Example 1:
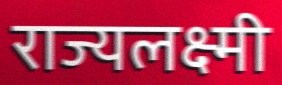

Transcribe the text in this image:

राज्यलक्ष्मी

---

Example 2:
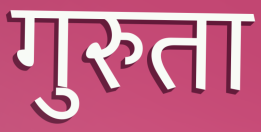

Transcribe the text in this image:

गुरुता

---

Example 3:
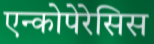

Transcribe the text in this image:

एन्कोपेरेसिस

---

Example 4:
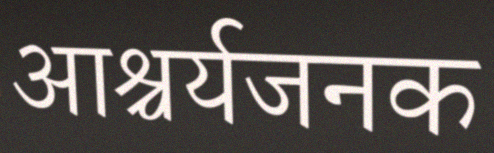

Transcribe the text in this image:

आश्चर्यजनक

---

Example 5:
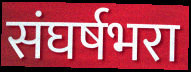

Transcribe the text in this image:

संघर्षभरा